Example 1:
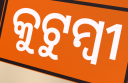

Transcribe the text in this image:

କୁଟୁମ୍ୱୀ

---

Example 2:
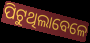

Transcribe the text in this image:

ପିଟୁଥିଲାବେଳେ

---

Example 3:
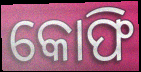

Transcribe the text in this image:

କୋଫି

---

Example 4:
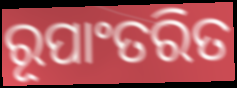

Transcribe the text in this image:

ରୂପାଂତରିତ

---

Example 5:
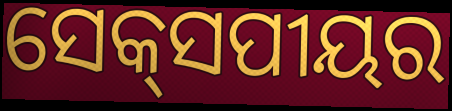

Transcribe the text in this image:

ସେକ୍‌ସପୀୟର